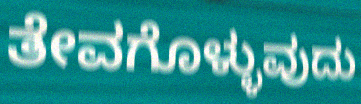
ತೇವಗೊಳ್ಳುವುದು